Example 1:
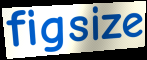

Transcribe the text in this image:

figsize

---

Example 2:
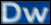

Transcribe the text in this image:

Dw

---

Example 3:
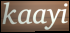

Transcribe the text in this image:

kaayi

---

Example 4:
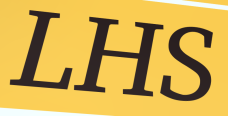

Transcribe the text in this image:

LHS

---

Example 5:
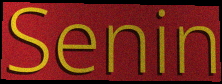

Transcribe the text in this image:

Senin